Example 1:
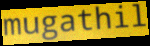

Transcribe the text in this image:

mugathil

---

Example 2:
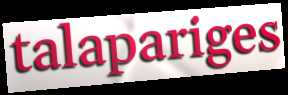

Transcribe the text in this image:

talapariges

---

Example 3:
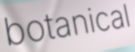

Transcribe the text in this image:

botanical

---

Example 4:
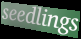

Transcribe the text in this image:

seedlings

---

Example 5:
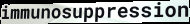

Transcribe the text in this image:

immunosuppression